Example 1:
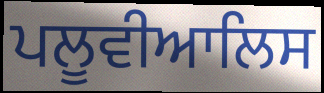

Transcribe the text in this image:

ਪਲੂਵੀਆਲਿਸ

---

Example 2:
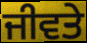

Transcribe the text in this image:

ਜੀਵਤੇ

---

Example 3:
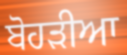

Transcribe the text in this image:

ਬੋਹੜੀਆ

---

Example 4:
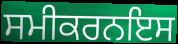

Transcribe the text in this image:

ਸਮੀਕਰਨਇਸ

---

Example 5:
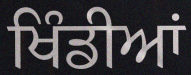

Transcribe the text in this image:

ਖਿੰਡੀਆਂ